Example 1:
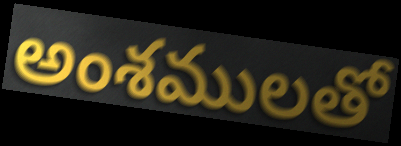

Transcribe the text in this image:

అంశములతో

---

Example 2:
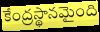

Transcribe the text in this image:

కేంద్రస్థానమైంది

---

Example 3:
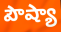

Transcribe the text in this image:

పౌష్యా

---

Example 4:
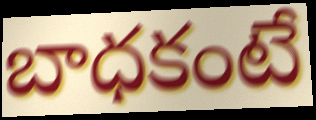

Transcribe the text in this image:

బాధకంటే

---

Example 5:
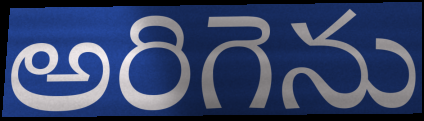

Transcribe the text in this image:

అరిగెను